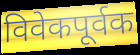
विवेकपूर्वक